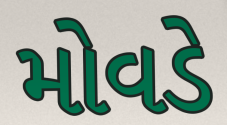
મોવડે